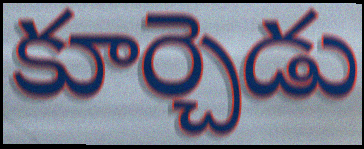
కూర్చెడు